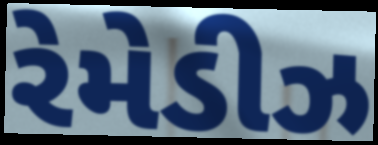
રેમેડીઝ